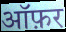
ऑफ़र